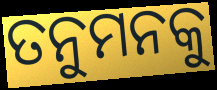
ତନୁମନକୁ